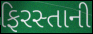
ફિરસ્તાની